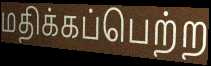
மதிக்கப்பெற்ற